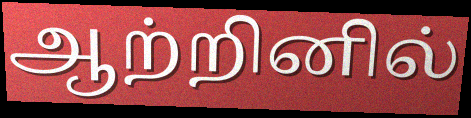
ஆற்றினில்